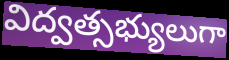
విద్వత్సభ్యులుగా